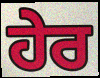
ਹੇਰ